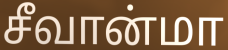
சீவான்மா